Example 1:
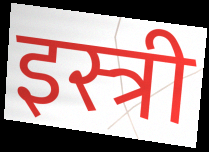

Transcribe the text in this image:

इस्त्री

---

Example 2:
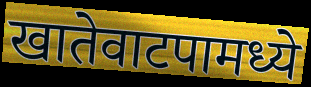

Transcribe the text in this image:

खातेवाटपामध्ये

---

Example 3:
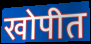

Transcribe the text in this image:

खोपीत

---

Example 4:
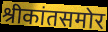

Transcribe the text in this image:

श्रीकांतसमोर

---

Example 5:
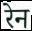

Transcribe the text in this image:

रेन